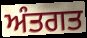
ਅੰਤਗਤ